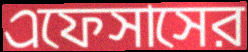
এফেসাসের